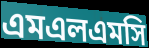
এমএলএমসি